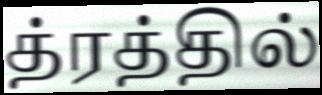
த்ரத்தில்